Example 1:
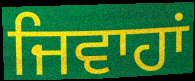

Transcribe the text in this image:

ਜਿਵਾਹਾਂ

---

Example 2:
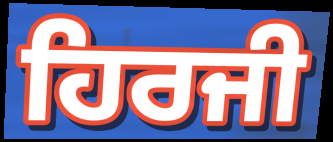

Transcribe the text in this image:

ਹਿਰਜੀ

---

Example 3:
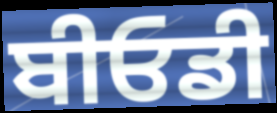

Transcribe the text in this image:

ਬੀਓਡੀ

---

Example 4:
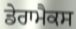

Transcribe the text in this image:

ਡੇਰਾਮੈਕਸ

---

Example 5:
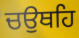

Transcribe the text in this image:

ਚਉਥਹਿ